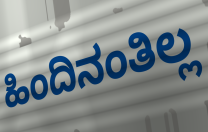
ಹಿಂದಿನಂತಿಲ್ಲ